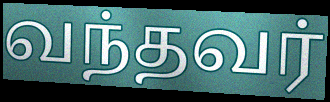
வந்தவர்